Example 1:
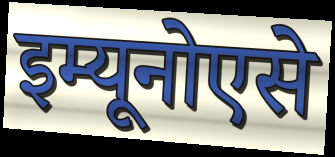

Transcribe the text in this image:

इम्यूनोएसे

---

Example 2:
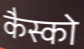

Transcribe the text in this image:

कैस्को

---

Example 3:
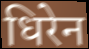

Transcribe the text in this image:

धिरेन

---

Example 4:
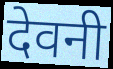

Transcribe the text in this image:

देवनी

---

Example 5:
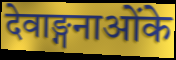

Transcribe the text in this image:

देवाङ्गनाओंके